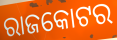
ରାଜକୋଟର